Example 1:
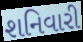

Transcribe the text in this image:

શનિવારી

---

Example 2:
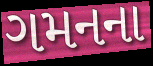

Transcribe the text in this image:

ગમનના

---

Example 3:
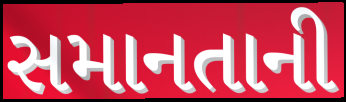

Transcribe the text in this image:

સમાનતાની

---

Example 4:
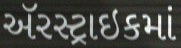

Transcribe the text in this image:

ઍરસ્ટ્રાઇકમાં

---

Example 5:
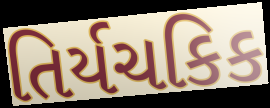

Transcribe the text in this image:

તિર્યચકિક